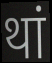
थां